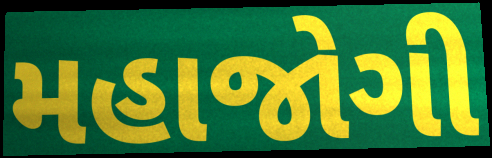
મહાજોગી